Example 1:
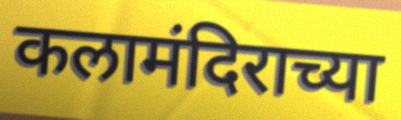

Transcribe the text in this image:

कलामंदिराच्या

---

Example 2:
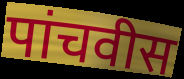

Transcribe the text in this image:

पांचवीस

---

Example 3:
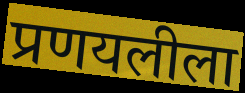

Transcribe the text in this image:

प्रणयलीला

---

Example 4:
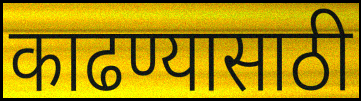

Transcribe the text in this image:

काढण्यासाठी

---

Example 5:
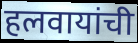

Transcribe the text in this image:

हलवायांची